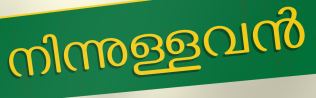
നിന്നുള്ളവൻ